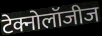
टेक्नोलॉजीज